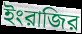
ইংরাজির